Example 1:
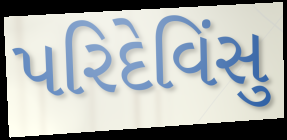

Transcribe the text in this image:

પરિદેવિંસુ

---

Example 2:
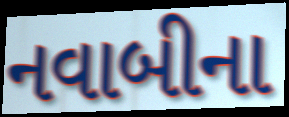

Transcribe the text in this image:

નવાબીના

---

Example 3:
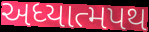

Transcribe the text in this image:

અધ્યાત્મપથ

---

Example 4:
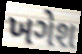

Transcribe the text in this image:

ખગેશ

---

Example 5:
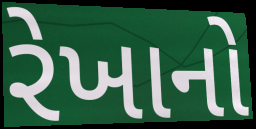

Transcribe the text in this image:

રેખાનો